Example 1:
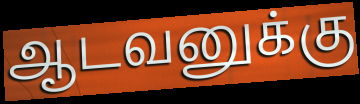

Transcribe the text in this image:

ஆடவனுக்கு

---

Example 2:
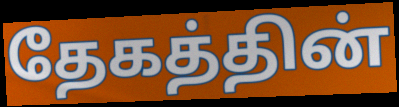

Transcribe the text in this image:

தேகத்தின்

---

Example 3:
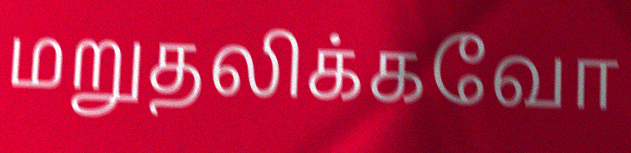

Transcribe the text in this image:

மறுதலிக்கவோ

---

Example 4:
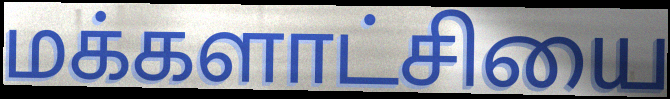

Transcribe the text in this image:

மக்களாட்சியை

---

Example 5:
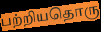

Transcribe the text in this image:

பற்றியதொரு